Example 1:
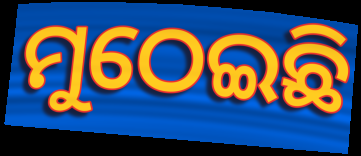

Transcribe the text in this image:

ମୁଠେଇଛି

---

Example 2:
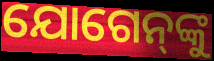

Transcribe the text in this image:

ଯୋଗେନ୍‌ଙ୍କୁ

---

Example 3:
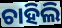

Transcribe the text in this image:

ଚାହିଲି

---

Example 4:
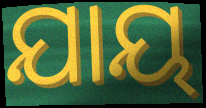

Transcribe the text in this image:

ଯାୟ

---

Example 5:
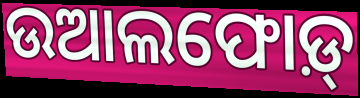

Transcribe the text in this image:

ଉଆଲଫୋଡ଼୍